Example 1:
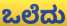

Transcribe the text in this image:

ಒಲೆದು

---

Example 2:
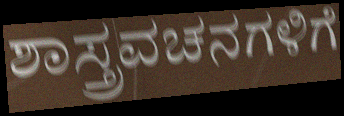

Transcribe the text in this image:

ಶಾಸ್ತ್ರವಚನಗಳಿಗೆ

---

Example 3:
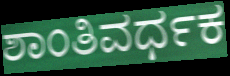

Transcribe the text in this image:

ಶಾಂತಿವರ್ಧಕ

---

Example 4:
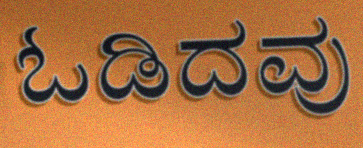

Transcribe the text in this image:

ಓಡಿದವು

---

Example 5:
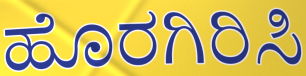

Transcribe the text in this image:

ಹೊರಗಿರಿಸಿ